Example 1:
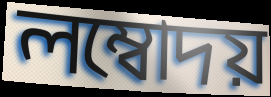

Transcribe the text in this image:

লম্বোদয়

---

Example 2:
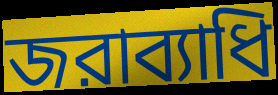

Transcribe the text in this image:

জরাব্যাধি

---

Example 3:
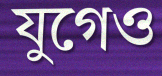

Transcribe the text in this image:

যুগেও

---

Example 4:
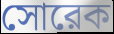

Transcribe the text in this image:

সোরেক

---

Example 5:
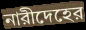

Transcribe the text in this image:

নারীদেহের